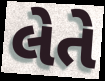
લેતે